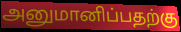
அனுமானிப்பதற்கு